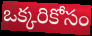
ఒక్కరికోసం